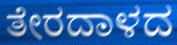
ತೇರದಾಳದ